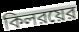
কিলরয়ের